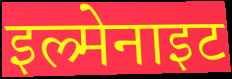
इल्मेनाइट